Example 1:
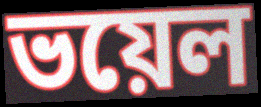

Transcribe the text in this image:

ভয়েল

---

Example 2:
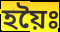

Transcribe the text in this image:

হয়ৈঃ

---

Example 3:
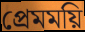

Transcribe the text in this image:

প্রেমময়ি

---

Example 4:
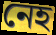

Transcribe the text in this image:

নেহ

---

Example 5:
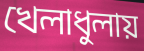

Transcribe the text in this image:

খেলাধুলায়